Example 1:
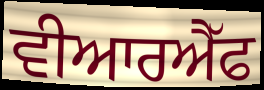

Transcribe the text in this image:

ਵੀਆਰਐੱਫ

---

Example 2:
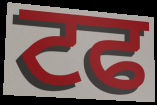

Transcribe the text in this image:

ਟਫ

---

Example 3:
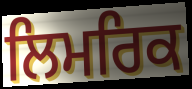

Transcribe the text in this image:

ਲਿਮਰਿਕ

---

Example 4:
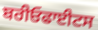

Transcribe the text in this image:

ਬਰੀਓਫਾਈਟਸ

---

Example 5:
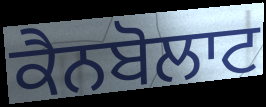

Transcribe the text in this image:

ਕੈਨਬੋਲਾਟ